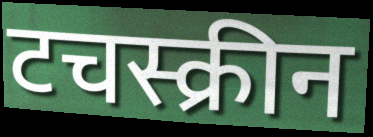
टचस्क्रीन